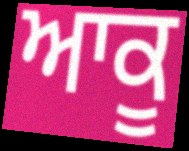
ਆਕੂ